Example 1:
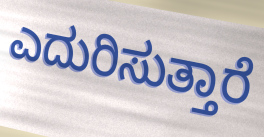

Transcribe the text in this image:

ಎದುರಿಸುತ್ತಾರೆ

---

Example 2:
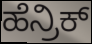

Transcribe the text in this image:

ಹೆನ್ರಿಕ್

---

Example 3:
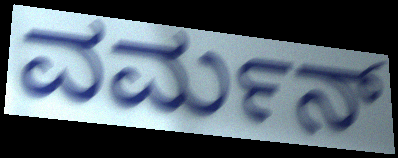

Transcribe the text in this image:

ವರ್ಮನ್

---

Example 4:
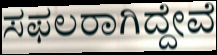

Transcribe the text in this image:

ಸಫಲರಾಗಿದ್ದೇವೆ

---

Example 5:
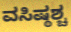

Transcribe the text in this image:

ವಸಿಷ್ಠಶ್ಚ